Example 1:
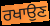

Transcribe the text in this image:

ਰਖਾਉਣ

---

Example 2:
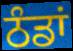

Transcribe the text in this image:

ਠੰਡਾਂ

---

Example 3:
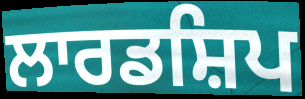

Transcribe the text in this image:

ਲਾਰਡਸ਼ਿਪ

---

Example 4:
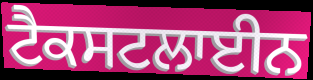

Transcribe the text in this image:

ਟੈਕਸਟਲਾਈਨ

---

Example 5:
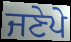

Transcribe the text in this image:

ਜਣੇਪੇ